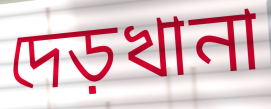
দেড়খানা